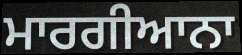
ਮਾਰਗੀਆਨਾ